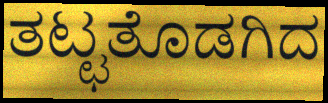
ತಟ್ಟತೊಡಗಿದ